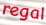
regal